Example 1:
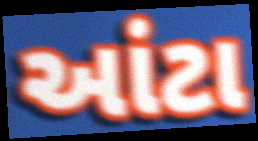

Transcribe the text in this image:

આંટા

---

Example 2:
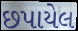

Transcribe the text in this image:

છપાયેલ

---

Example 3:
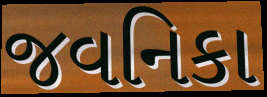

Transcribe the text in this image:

જવનિકા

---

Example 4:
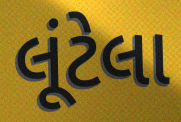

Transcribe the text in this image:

લૂંટેલા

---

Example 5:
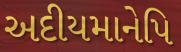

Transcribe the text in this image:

અદીયમાનેપિ